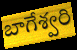
బాగేశ్వరి